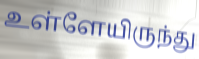
உள்ளேயிருந்து